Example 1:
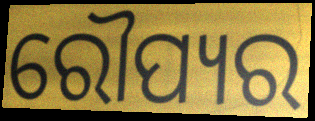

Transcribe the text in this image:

ରୌପ୍ୟର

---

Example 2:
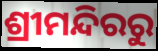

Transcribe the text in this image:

ଶ୍ରୀମନ୍ଦିରରୁ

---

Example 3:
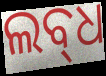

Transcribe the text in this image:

ଲବ୍‍ଧ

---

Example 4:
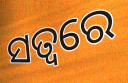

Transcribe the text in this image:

ସତ୍ଵରେ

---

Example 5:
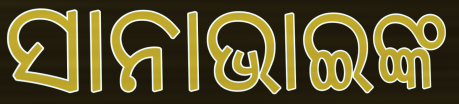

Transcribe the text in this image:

ସାନାଭାଇଙ୍କ